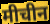
मीचीन